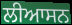
ਲੀਆਸਨ